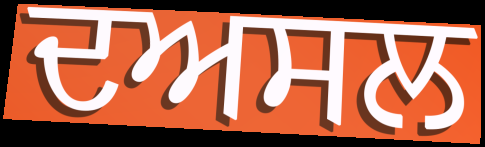
ਦਅਸਲ